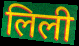
लिली